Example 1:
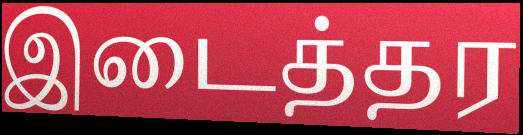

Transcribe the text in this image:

இடைத்தர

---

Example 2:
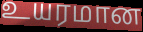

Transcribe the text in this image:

உயரமான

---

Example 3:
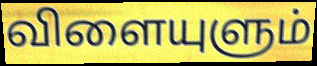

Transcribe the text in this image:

விளையுளும்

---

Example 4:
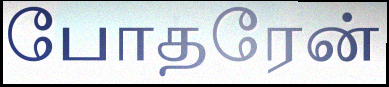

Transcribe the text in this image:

போதரேன்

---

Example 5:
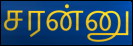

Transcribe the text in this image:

சரன்னு